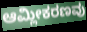
ಆಮ್ಲೀಕರಣವು